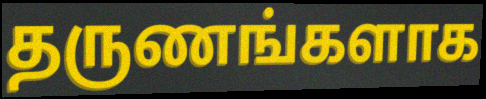
தருணங்களாக